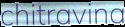
chitravina